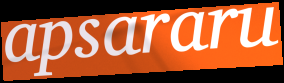
apsararu